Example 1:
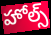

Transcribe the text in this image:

హోల్స్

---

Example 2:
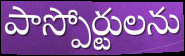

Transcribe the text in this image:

పాస్పోర్టులను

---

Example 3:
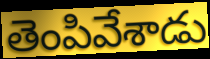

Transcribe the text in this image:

తెంపివేశాడు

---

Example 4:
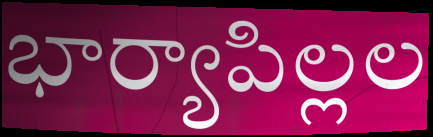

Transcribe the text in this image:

భార్యాపిల్లల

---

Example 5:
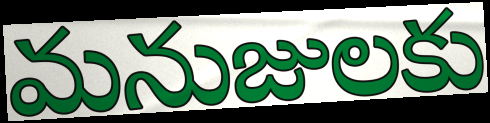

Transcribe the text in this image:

మనుజులకు